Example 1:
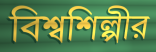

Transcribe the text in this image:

বিশ্বশিল্পীর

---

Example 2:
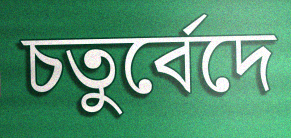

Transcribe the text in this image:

চতুর্বেদে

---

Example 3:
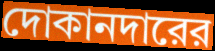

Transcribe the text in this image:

দোকানদারের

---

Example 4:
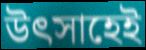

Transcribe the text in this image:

উৎসাহেই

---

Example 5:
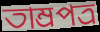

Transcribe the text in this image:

তাম্রপত্র